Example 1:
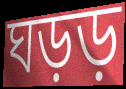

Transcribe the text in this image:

ঘড়ড়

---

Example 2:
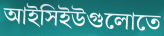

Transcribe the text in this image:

আইসিইউগুলোতে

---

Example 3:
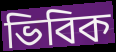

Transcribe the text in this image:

ভিবিক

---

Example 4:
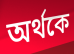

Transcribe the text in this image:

অর্থকে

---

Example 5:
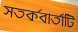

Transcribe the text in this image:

সতর্কবার্তাটি